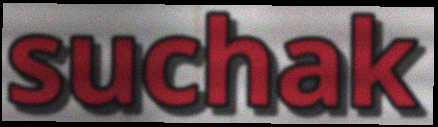
suchak